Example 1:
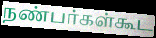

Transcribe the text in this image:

நண்பர்கள்கூட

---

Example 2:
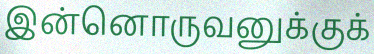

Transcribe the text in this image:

இன்னொருவனுக்குக்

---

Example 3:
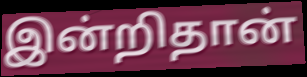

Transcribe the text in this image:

இன்றிதான்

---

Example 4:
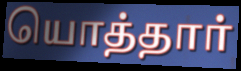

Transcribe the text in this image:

யொத்தார்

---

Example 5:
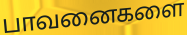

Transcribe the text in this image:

பாவனைகளை